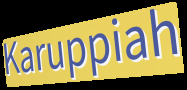
Karuppiah